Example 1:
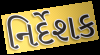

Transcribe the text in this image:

નિર્દેશક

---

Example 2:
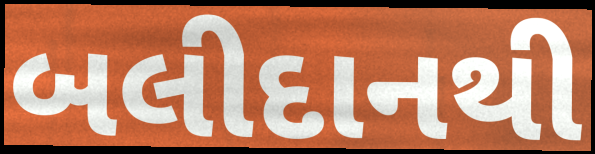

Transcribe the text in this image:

બલીદાનથી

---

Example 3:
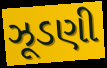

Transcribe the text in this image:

ઝૂડણી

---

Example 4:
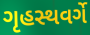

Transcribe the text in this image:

ગૃહસ્થવર્ગે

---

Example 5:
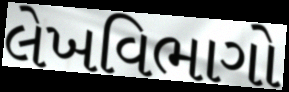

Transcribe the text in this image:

લેખવિભાગો